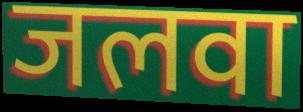
जलवा